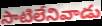
సాటిలేనివాడు